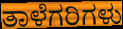
ತಾಳೆಗರಿಗಳು